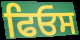
ਫਿਓਸ